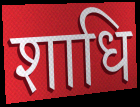
शाधि